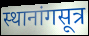
स्थानांगसूत्र